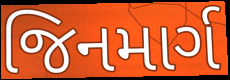
જિનમાર્ગ